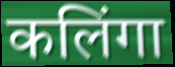
कलिंगा